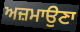
ਅਜ਼ਮਾਉਣਾ